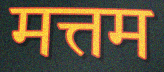
मत्तम